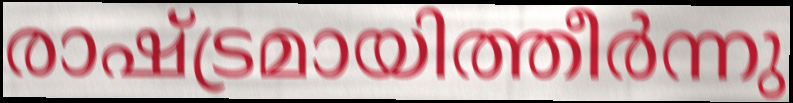
രാഷ്ട്രമായിത്തീർന്നു